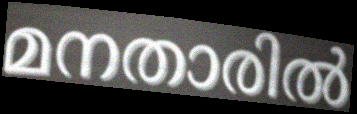
മനതാരിൽ